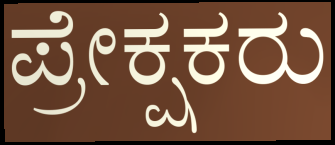
ಪ್ರೇಕ್ಷಕರು